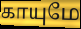
காயுமே